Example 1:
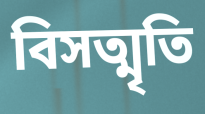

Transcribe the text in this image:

বিসত্মৃতি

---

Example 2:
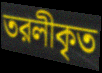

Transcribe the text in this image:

তরলীকৃত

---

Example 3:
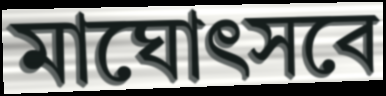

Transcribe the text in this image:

মাঘোৎসবে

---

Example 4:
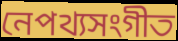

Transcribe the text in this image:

নেপথ্যসংগীত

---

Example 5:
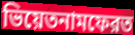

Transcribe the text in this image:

ভিয়েতনামফেরত